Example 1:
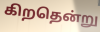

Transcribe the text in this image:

கிறதென்று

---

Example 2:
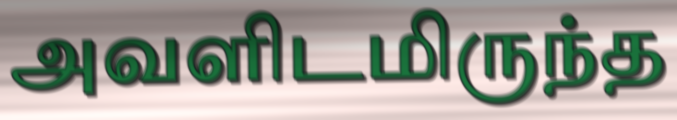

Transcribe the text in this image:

அவளிடமிருந்த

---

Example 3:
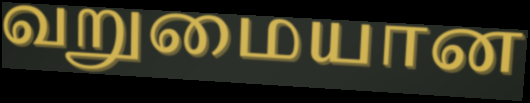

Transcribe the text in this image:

வறுமையான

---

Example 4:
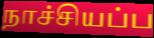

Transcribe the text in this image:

நாச்சியப்ப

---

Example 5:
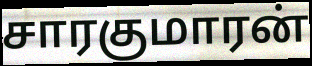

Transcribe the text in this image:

சாரகுமாரன்